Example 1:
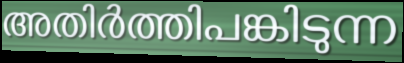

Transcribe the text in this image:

അതിർത്തിപങ്കിടുന്ന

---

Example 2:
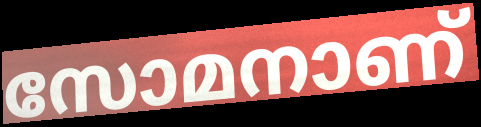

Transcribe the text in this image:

സോമനാണ്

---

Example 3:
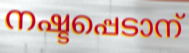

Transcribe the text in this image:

നഷ്ടപ്പെടാന്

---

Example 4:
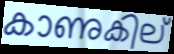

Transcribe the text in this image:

കാണുകില്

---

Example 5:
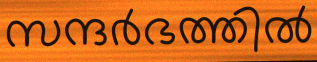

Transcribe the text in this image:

സന്ദർഭത്തിൽ